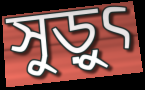
সুড়ুৎ